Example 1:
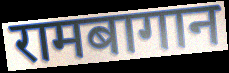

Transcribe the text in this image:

रामबागान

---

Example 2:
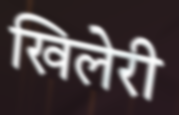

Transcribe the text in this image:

खिलेरी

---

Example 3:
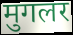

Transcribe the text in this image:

मुगलर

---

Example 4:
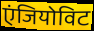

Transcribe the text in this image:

एंजियोविट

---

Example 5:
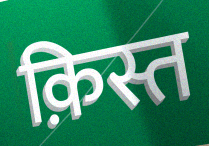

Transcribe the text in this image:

क़िस्त